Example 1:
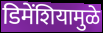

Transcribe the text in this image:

डिमेंशियामुळे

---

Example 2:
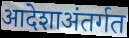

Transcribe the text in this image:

आदेशाअंतर्गत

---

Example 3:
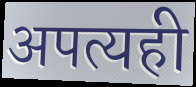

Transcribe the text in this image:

अपत्यही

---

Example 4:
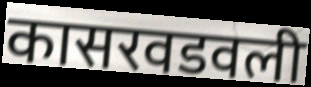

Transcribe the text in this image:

कासरवडवली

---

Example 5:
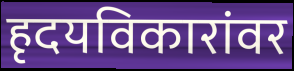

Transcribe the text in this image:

हृदयविकारांवर